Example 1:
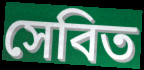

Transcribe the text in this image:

সেবিত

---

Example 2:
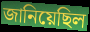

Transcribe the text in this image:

জানিয়েছিল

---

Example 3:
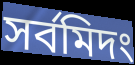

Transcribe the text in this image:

সর্বমিদং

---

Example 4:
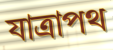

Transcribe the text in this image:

যাত্রাপথ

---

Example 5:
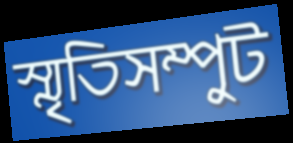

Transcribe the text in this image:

স্মৃতিসম্পুট